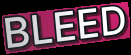
BLEED